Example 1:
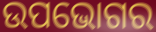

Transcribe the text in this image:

ଉପଭୋଗର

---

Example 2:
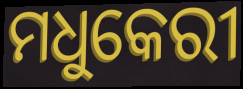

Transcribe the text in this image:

ମଧୁକେରୀ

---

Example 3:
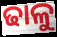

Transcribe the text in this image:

ଢାଳୁ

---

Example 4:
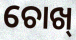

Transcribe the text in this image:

ଚୋଖ୍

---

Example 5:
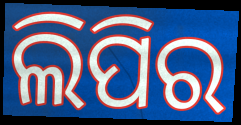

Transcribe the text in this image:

ଲିପିର